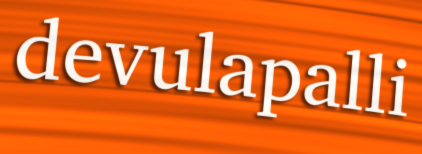
devulapalli